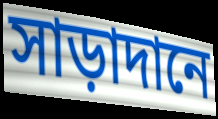
সাড়াদানে